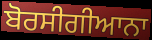
ਬੋਰਸੀਗੀਆਨਾ